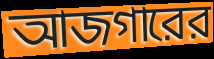
আজগারের